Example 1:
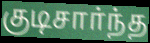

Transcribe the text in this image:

குடிசார்ந்த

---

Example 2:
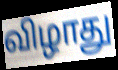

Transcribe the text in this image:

விழாது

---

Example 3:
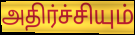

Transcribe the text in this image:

அதிர்ச்சியும்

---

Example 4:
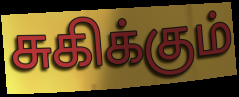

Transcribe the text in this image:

சுகிக்கும்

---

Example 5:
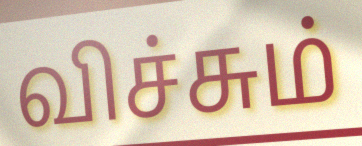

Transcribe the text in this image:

விச்சும்